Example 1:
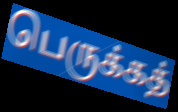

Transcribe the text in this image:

பெருக்கத்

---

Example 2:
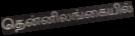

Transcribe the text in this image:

தென்னிலங்கையில்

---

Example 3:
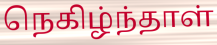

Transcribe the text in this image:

நெகிழ்ந்தாள்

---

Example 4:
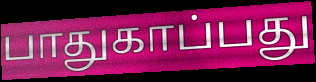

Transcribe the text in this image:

பாதுகாப்பது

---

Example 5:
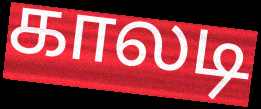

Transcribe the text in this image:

காலடி